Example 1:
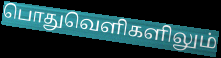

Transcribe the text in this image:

பொதுவெளிகளிலும்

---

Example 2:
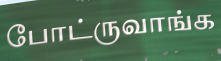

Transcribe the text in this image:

போட்ருவாங்க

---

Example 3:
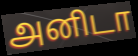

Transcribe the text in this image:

அனிடா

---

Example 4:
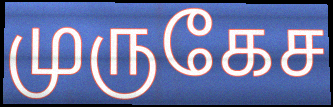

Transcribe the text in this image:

முருகேச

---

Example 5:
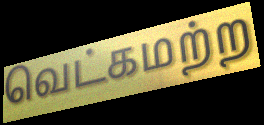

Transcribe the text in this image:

வெட்கமற்ற